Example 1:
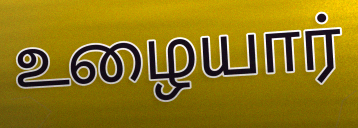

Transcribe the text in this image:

உழையார்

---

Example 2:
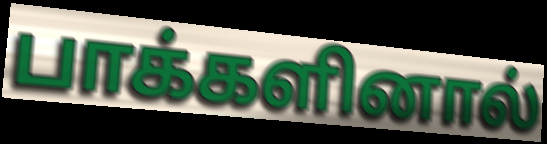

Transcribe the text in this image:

பாக்களினால்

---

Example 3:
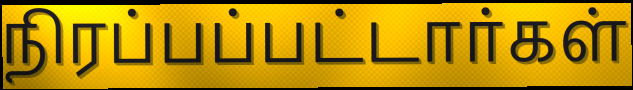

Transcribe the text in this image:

நிரப்பப்பட்டார்கள்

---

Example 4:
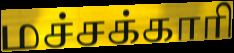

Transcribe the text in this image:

மச்சக்காரி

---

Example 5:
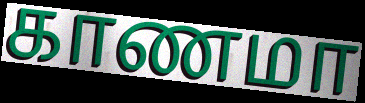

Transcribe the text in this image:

காணமா